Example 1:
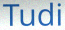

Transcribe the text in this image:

Tudi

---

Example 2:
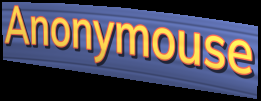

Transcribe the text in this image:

Anonymouse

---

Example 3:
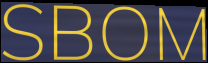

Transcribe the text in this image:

SBOM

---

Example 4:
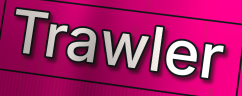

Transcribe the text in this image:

Trawler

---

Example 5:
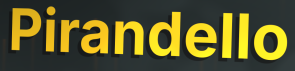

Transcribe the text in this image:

Pirandello